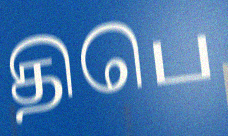
திபெ